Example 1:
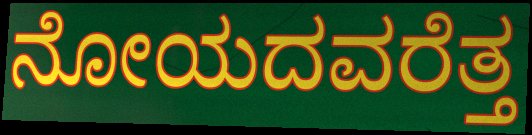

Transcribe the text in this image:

ನೋಯದವರೆತ್ತ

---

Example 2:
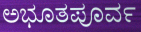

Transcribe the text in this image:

ಅಭೂತಪೂರ್ವ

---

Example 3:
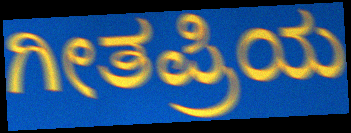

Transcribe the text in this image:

ಗೀತಪ್ರಿಯ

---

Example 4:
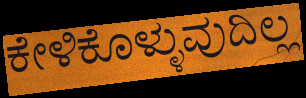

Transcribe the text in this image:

ಕೇಳಿಕೊಳ್ಳುವುದಿಲ್ಲ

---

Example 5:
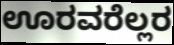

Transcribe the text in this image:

ಊರವರೆಲ್ಲರ